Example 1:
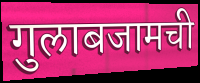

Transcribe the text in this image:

गुलाबजामची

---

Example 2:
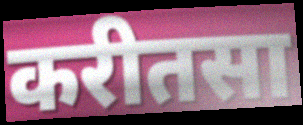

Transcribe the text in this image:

करीतसा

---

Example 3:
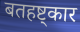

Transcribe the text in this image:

बतहष्ट्कार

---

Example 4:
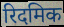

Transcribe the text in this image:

रिदमिक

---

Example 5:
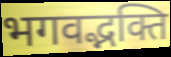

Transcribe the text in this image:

भगवद्भक्ति